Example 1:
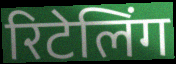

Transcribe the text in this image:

रिटेलिंग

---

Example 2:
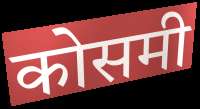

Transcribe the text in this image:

कोसमी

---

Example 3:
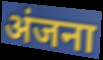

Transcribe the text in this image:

अंजना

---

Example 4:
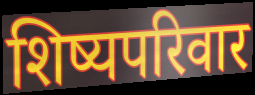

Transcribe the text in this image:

शिष्यपरिवार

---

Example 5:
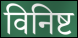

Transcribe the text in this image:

विनिष्ट